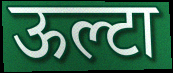
ऊल्टा